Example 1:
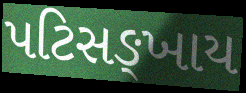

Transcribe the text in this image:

પટિસઙ્ખાય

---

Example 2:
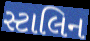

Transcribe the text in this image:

સ્ટાલિન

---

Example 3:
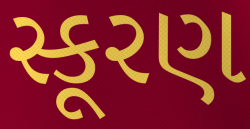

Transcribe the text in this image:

સ્કૂરણ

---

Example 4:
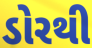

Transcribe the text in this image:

ડોરથી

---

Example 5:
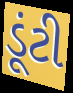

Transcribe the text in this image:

ડૂંટી